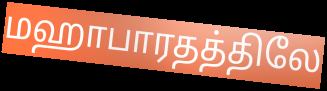
மஹாபாரதத்திலே